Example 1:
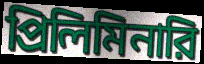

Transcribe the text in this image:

প্রিলিমিনারি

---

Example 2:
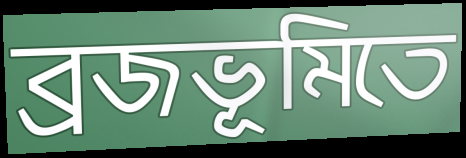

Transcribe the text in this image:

ব্রজভূমিতে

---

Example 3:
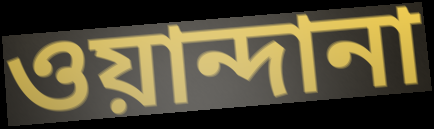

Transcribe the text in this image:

ওয়ান্দানা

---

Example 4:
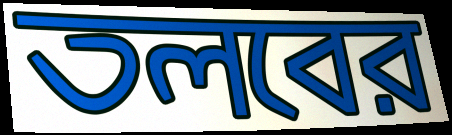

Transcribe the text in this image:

তলবের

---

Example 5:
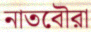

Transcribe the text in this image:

নাতবৌরা